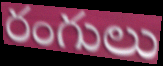
రంగులు